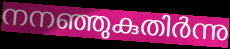
നനഞ്ഞുകുതിർന്നു